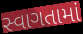
સ્વાગતામાં